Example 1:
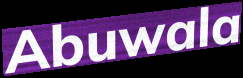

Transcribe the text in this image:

Abuwala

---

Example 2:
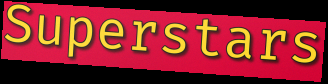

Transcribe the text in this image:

Superstars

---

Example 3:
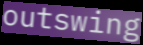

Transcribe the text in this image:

outswing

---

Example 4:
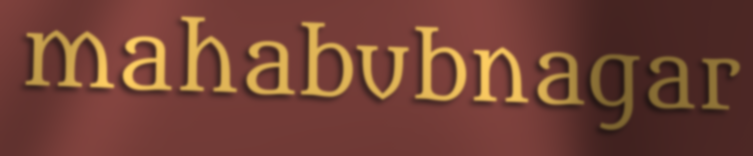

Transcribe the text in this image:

mahabubnagar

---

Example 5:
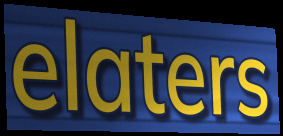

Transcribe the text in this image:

elaters